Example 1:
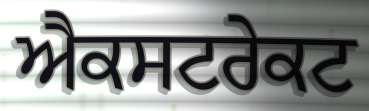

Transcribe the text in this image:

ਐਕਸਟਰੇਕਟ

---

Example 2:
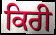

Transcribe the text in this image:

ਕਿਰੀ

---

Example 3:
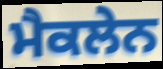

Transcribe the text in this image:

ਮੈਕਲੇਨ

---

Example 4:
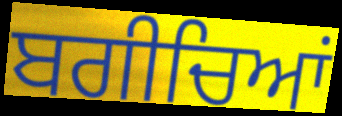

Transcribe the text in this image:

ਬਗੀਚਿਆਂ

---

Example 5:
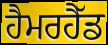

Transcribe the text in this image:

ਹੈਮਰਹੈੱਡ